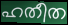
ഹതീത